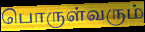
பொருள்வரும்